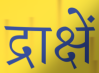
द्राक्षें